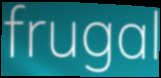
frugal